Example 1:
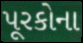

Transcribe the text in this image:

પૂરકોના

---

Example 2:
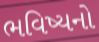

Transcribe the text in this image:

ભવિષ્યનો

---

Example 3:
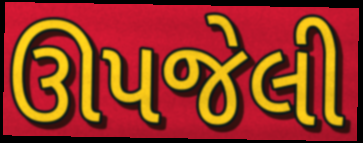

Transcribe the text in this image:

ઊપજેલી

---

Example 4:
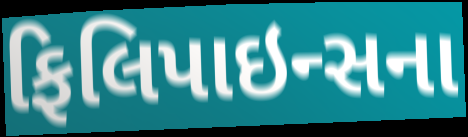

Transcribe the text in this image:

ફિલિપાઇન્સના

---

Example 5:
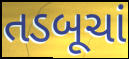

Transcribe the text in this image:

તડબૂચાં